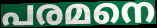
പരമനെ